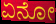
ಏನೋ